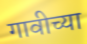
गावीच्या